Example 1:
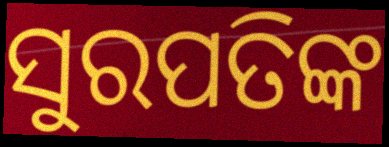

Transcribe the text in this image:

ସୁରପତିଙ୍କ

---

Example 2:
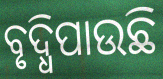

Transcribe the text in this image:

ବୃଦ୍ଧିପାଉଛି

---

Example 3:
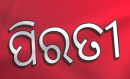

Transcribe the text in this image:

ପିରତୀ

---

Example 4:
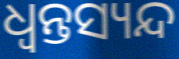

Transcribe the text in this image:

ଧ୍ଵନ୍ତସ୍ୟନ୍ଦ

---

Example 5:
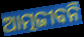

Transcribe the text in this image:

ଆତ୍ମଜୀବନି